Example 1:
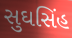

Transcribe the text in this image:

સુઘસિંહ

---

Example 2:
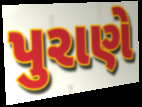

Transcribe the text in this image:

પુરાણે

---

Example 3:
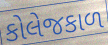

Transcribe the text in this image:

કોલેજકાળ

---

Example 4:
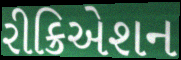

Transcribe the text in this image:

રીક્રિએશન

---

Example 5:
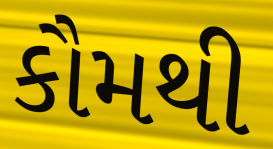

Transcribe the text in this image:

કૌમથી